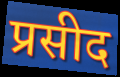
प्रसीद